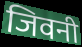
जिवनी